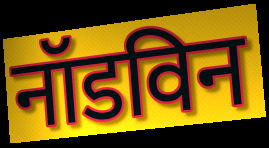
नॉडविन